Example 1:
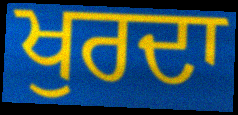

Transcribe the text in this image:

ਖੁਰਦਾ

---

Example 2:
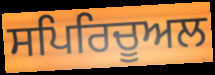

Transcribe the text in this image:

ਸਪਿਰਿਚੂਅਲ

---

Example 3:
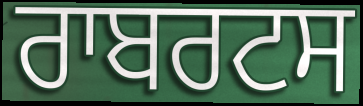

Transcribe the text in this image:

ਰਾਬਰਟਸ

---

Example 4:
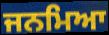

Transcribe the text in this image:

ਜਨਮਿਆ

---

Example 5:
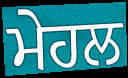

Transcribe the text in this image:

ਮੇਹਲ